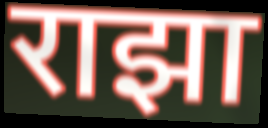
राझा